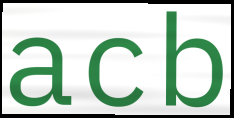
acb